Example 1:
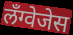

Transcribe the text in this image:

लँग्वेजेस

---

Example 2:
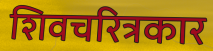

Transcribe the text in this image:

शिवचरित्रकार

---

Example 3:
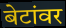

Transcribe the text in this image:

बेटांवर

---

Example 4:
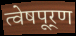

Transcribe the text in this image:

त्वेषपूर्ण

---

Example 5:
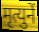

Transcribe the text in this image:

मृत्युनें